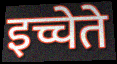
इच्चेते